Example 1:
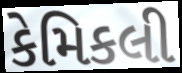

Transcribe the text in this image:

કેમિકલી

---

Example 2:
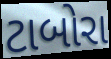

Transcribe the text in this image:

ટાબોરા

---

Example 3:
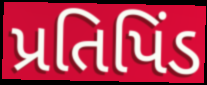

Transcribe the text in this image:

પ્રતિપિંડ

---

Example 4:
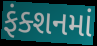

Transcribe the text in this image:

ફંક્શનમાં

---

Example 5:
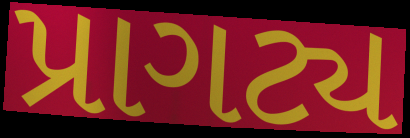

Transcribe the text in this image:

પ્રાગટ્ય